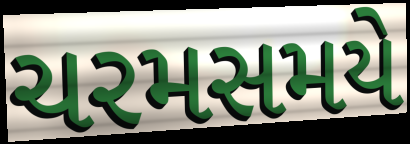
ચરમસમયે